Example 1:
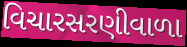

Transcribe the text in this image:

વિચારસરણીવાળા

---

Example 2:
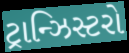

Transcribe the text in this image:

ટ્રાન્ઝિસ્ટરો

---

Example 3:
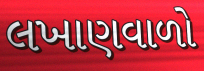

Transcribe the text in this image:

લખાણવાળો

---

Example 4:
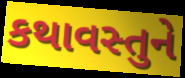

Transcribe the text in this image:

કથાવસ્તુને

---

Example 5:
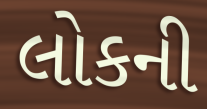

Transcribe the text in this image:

લોકની